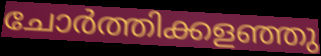
ചോർത്തിക്കളഞ്ഞു